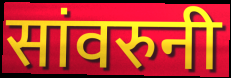
सांवरुनी